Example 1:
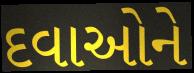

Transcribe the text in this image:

દવાઓને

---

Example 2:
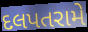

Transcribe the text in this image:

દલપતરામે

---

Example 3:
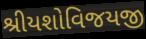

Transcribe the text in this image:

શ્રીયશોવિજયજી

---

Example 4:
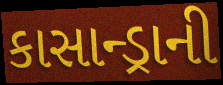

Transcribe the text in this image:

કાસાન્ડ્રાની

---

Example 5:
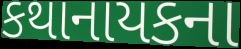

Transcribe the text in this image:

કથાનાયકના